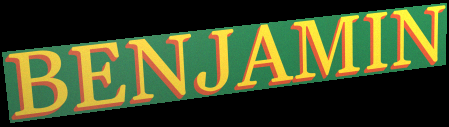
BENJAMIN